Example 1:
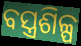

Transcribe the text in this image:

ବସ୍ତ୍ରଶିଳ୍ପ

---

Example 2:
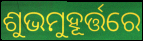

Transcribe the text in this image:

ଶୁଭମୁହୂର୍ତ୍ତରେ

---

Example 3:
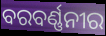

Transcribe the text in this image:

ବରବର୍ଣ୍ଣନୀର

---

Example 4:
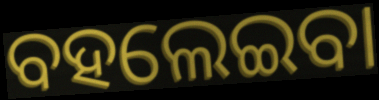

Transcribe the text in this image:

ବହଲେଇବା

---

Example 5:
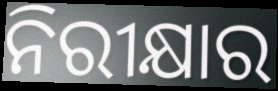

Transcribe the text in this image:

ନିରୀକ୍ଷାର